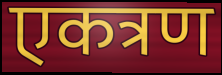
एकत्रण